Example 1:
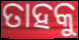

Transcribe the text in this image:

ତାହକୁ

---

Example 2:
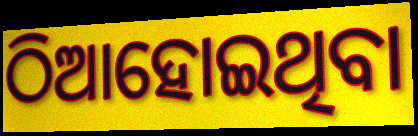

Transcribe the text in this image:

ଠିଆହୋଇଥିବା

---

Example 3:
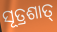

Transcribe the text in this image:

ସୂତ୍ରଶାତ୍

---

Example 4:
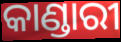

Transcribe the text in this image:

କାଣ୍ଡାରୀ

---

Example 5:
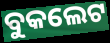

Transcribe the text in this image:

ବୁକଲେଟ